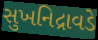
સુખનિદ્રાવડે